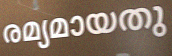
രമ്യമായതു